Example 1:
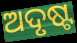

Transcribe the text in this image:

ଅଦୃଷ୍ଟ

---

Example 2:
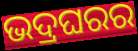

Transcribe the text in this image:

ଭଦ୍ରଘରର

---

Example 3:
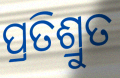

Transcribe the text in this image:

ପ୍ରତିଶ୍ରୁତ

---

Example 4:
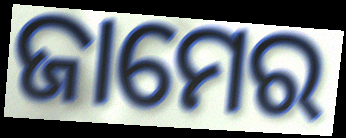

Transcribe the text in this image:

ଜାମେର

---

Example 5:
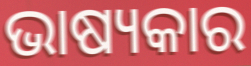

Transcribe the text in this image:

ଭାଷ୍ୟକାର